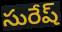
సురేష్